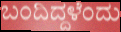
ಬಂದಿದ್ದಳೆಂದು